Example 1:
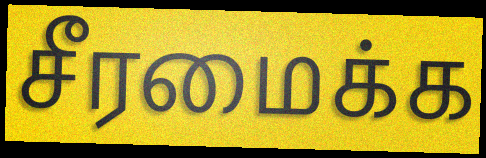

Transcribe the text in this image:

சீரமைக்க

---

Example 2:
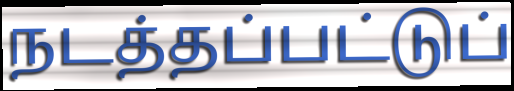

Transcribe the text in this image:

நடத்தப்பட்டுப்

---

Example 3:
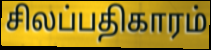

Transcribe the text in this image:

சிலப்பதிகாரம்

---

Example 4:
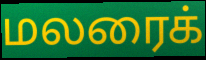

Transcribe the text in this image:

மலரைக்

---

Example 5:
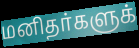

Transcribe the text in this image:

மனிதர்களுக்